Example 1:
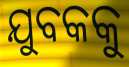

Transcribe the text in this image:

ଯୁବକକୁ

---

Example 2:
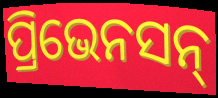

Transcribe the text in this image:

ପ୍ରିଭେନସନ୍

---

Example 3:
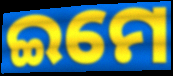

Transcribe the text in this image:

ଇମେ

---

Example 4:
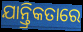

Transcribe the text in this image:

ଯାନ୍ତ୍ରିକତାରେ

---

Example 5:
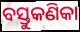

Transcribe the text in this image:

ବସ୍ତୁକଣିକା